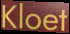
Kloet